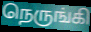
நெருங்கி